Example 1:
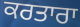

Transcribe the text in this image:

ਕਰਤਾਰਾ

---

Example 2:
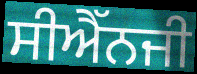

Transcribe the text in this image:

ਸੀਐੱਨਜੀ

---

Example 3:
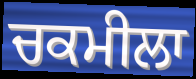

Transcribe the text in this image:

ਚਕਮੀਲਾ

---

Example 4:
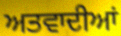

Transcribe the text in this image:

ਅਤਵਾਦੀਆਂ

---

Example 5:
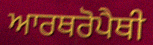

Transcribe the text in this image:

ਆਰਥਰੋਪੈਥੀ